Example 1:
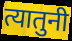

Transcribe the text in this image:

त्यातुनी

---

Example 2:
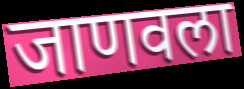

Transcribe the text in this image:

जाणवला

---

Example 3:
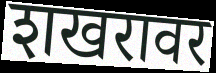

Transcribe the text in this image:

शखरावर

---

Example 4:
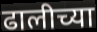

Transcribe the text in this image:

ढालीच्या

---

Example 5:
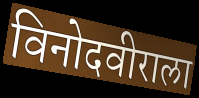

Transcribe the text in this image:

विनोदवीराला